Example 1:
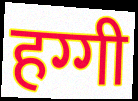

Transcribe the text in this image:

हग्गी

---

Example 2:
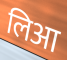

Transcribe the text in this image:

लिआ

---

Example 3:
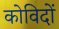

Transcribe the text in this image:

कोविदों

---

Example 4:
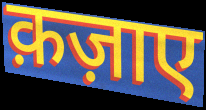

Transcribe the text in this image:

क़ज़ाए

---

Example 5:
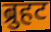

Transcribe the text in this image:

ब्रुहट